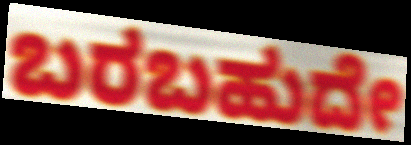
ಬರಬಹುದೇ